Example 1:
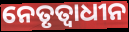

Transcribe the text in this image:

ନେତୃତ୍ୱାଧୀନ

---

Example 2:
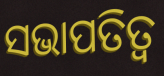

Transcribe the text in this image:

ସଭାପତିତ୍ବ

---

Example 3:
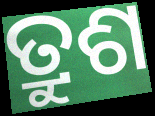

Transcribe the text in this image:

ତ୍ରୁଶ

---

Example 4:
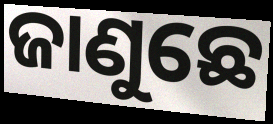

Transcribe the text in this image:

ଜାଣୁଛେ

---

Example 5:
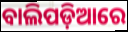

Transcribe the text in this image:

ବାଲିପଡ଼ିଆରେ